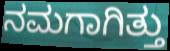
ನಮಗಾಗಿತ್ತು